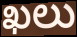
ఖలు